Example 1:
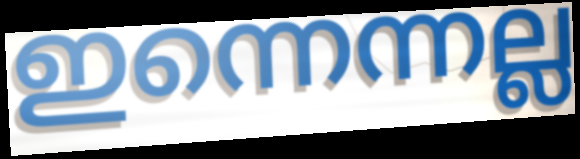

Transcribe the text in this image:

ഇന്നെന്നല്ല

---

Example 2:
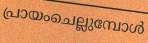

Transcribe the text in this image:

പ്രായംചെല്ലുമ്പോൾ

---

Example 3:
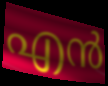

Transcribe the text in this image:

എൻ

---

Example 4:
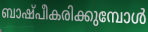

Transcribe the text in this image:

ബാഷ്പീകരിക്കുമ്പോൾ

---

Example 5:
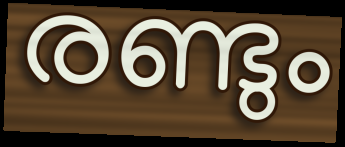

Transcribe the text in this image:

രണ്ടും